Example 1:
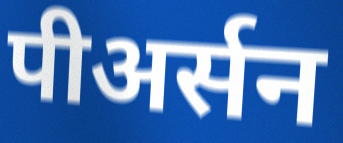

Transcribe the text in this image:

पीअर्सन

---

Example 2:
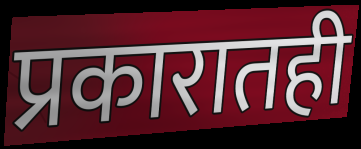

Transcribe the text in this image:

प्रकारातही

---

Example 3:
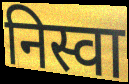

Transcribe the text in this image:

निस्वा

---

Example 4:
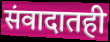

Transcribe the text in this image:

संवादातही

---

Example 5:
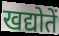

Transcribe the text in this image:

खद्योतें